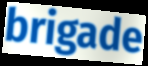
brigade